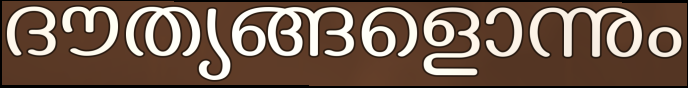
ദൗത്യങ്ങളൊന്നും